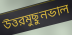
উত্তরমুছুনভাল